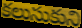
కలుసుకుని